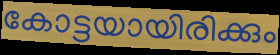
കോട്ടയായിരിക്കും